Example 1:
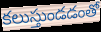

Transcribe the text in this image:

కలుస్తుండడంతో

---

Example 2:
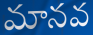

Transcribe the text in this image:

మానవ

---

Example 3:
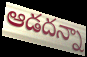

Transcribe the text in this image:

ఆడదన్నా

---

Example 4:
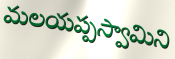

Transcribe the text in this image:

మలయప్పస్వామిని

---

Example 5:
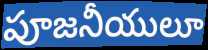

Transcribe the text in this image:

పూజనీయులూ